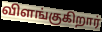
விளங்குகிறார்